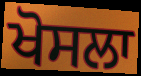
ਖੋਸਲਾ